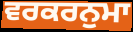
ਵਰਕਰਨੁਮਾ